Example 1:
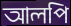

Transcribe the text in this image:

আলপি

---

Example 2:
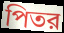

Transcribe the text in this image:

পিতর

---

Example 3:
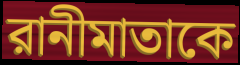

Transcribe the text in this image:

রানীমাতাকে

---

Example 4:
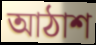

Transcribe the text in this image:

আঠাশ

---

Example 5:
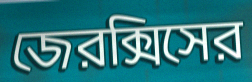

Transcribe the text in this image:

জেরক্সিসের